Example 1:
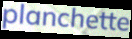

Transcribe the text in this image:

planchette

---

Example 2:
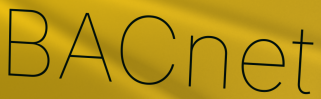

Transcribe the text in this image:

BACnet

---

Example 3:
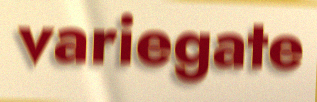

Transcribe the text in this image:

variegate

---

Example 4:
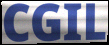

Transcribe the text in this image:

CGIL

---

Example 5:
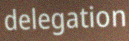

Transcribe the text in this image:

delegation